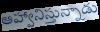
ఆహ్వానిస్తున్నాడు